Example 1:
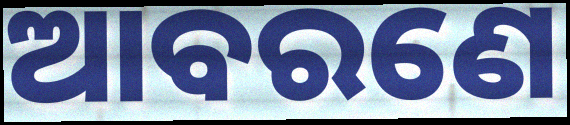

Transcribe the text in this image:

ଆବରଣେ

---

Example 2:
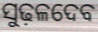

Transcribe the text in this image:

ସୁଢ଼ଳଦେବ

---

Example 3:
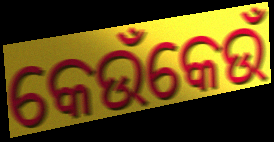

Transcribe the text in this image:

କେଉଁକେଉଁ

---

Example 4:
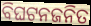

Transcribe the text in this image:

ବିଘଟନଜନିତ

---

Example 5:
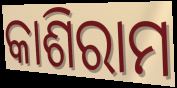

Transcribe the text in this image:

କାଶିରାମ